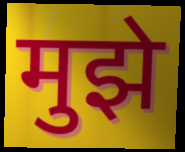
मुझे